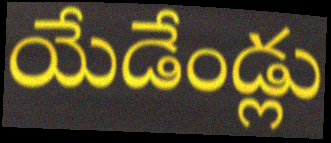
యేడేండ్లు